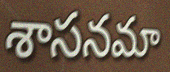
శాసనమా